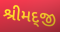
શ્રીમદ્જી